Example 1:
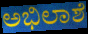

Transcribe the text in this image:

ಅಭಿಲಾಶೆ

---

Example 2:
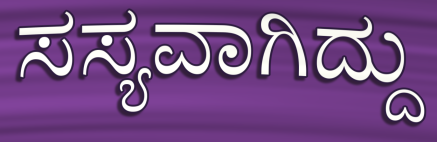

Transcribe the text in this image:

ಸಸ್ಯವಾಗಿದ್ದು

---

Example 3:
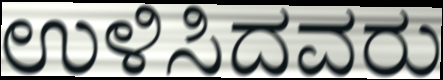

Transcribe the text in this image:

ಉಳಿಸಿದವರು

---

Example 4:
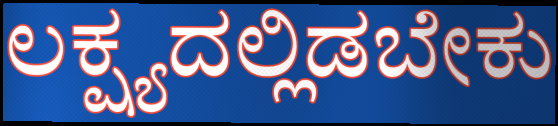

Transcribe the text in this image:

ಲಕ್ಷ್ಯದಲ್ಲಿಡಬೇಕು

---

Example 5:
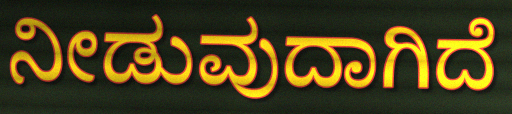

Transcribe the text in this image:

ನೀಡುವುದಾಗಿದೆ